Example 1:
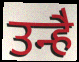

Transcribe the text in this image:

उन्है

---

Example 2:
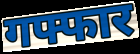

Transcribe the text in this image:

गफ्फार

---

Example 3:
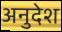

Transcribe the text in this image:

अनुदेश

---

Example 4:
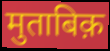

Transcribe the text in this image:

मुताबिक़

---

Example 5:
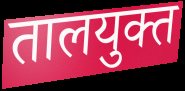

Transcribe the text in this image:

तालयुक्त